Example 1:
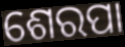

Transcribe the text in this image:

ଶେରପା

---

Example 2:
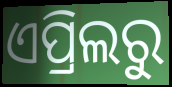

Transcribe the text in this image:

ଏପ୍ରିଲରୁ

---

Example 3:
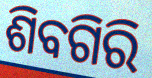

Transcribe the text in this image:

ଶିବଗିରି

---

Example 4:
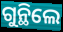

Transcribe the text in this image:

ଗୁନ୍ଥିଲେ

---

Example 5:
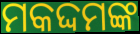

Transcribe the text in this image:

ମକଦ୍ଦମଙ୍କ